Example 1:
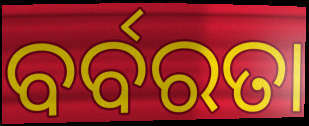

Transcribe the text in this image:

ବର୍ବରତା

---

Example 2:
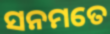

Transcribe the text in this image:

ସନମତେ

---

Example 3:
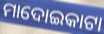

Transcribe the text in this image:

ମାଦୋଇକାଟା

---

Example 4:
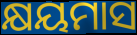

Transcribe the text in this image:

କ୍ଷୟମାସ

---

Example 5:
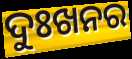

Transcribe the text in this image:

ଦୁଃଖନର